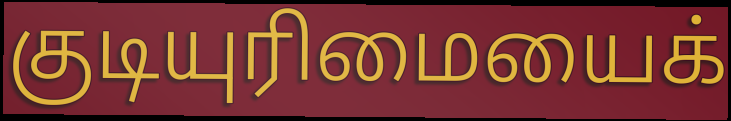
குடியுரிமையைக்